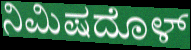
ನಿಮಿಷದೊಳ್